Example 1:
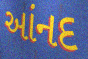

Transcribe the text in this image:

આંનદ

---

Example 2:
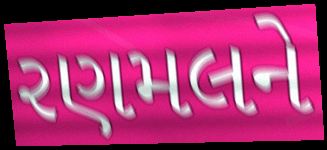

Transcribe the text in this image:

રણમલને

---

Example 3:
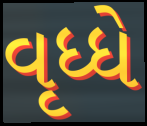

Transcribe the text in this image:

વૃધ્ધે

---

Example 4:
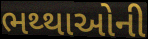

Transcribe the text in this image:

ભથ્થાઓની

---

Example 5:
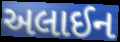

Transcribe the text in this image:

અલાઈન